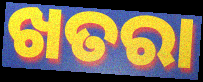
ଖତରା